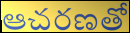
ఆచరణతో